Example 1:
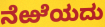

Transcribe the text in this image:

ನೆಱೆಯದು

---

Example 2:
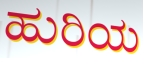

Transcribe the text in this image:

ಹುರಿಯ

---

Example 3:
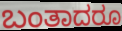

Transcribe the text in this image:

ಬಂತಾದರೂ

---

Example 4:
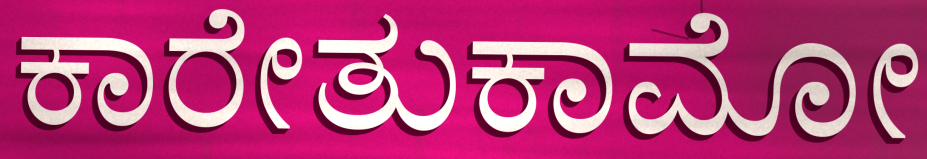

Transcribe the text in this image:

ಕಾರೇತುಕಾಮೋ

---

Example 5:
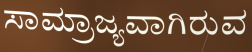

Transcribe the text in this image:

ಸಾಮ್ರಾಜ್ಯವಾಗಿರುವ